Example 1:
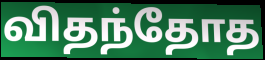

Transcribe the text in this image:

விதந்தோத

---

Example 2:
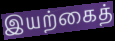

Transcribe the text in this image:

இயற்கைத்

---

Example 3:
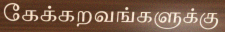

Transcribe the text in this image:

கேக்கறவங்களுக்கு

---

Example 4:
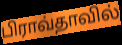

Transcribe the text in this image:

பிராவ்தாவில்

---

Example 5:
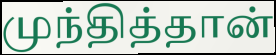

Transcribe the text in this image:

முந்தித்தான்